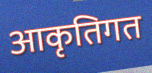
आकृतिगत